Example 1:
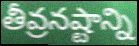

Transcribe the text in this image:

తీవ్రనష్టాన్ని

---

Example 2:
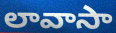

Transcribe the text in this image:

లావాసా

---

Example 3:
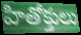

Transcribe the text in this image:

హితోక్తులు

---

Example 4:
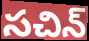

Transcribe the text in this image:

సచిన్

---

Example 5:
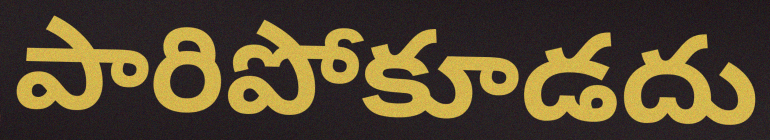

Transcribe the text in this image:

పారిపోకూడదు